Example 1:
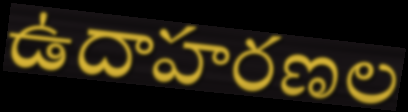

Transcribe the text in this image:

ఉదాహరణల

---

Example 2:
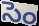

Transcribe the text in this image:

సెం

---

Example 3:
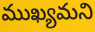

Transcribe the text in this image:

ముఖ్యమని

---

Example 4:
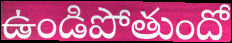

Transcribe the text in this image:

ఉండిపోతుందో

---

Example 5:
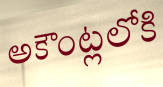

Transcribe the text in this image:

అకౌంట్లలోకి